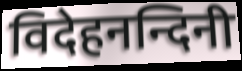
विदेहनन्दिनी